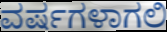
ವರ್ಷಗಳಾಗಲಿ